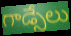
గాడ్సేలు